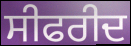
ਸੀਫਰੀਦ